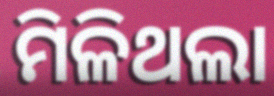
ମିଳିଥଲା